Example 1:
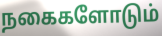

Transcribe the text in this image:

நகைகளோடும்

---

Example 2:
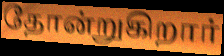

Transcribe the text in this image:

தோன்றுகிறார்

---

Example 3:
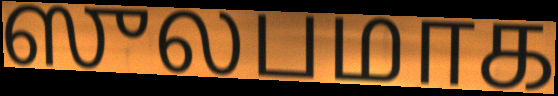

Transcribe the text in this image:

ஸுலபமாக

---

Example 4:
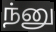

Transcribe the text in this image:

ந்னு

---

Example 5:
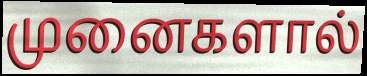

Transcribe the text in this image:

முனைகளால்